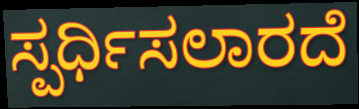
ಸ್ಪರ್ಧಿಸಲಾರದೆ